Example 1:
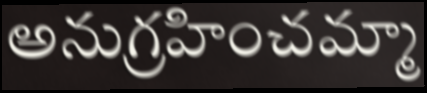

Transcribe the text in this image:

అనుగ్రహించమ్మా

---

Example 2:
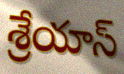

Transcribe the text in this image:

శ్రేయాస్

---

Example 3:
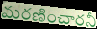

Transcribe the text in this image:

మరణించారనీ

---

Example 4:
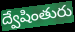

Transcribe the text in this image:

ద్వేషింతురు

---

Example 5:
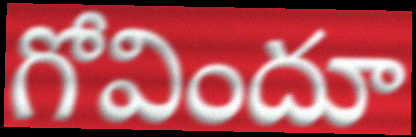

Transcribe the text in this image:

గోవిందూ